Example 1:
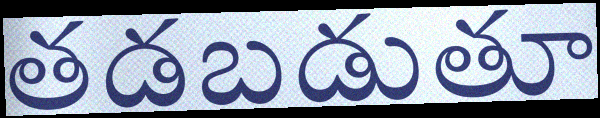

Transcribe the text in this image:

తడబడుతూ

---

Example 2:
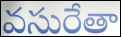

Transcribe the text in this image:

వసురేతా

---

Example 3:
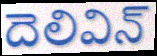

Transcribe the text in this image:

దెలివిన్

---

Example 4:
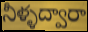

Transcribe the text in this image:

నీళ్ళద్వారా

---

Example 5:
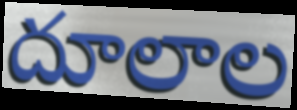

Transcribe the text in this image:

దూలాల